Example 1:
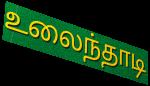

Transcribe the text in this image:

உலைந்தாடி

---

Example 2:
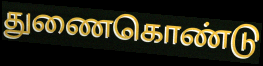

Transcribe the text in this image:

துணைகொண்டு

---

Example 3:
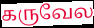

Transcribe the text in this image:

கருவேல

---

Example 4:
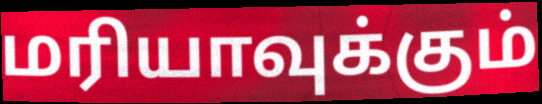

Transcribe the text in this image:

மரியாவுக்கும்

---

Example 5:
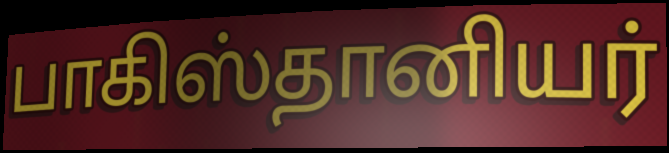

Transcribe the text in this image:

பாகிஸ்தானியர்